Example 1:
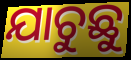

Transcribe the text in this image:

ଯାଚୁଛୁ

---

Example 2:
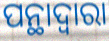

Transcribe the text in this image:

ପନ୍ଥାଦ୍ୱାରା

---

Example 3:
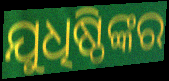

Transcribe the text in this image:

ଯୁଧିଷ୍ଠିଙ୍କର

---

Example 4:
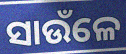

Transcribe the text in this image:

ସାଉଁଳେ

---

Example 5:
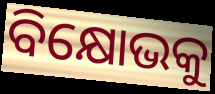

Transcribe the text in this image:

ବିକ୍ଷୋଭକୁ